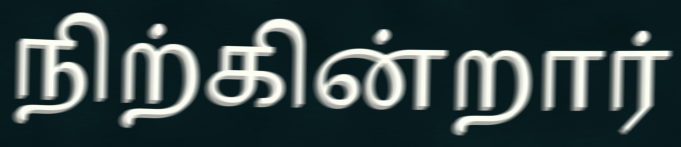
நிற்கின்றார்